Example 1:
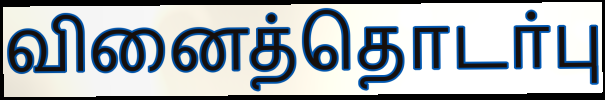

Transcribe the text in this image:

வினைத்தொடர்பு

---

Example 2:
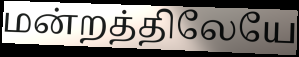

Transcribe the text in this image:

மன்றத்திலேயே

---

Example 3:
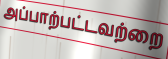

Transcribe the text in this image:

அப்பாற்பட்டவற்றை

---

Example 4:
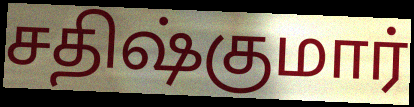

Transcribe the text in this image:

சதிஷ்குமார்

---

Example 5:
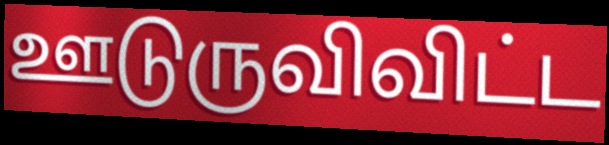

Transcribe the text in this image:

ஊடுருவிவிட்ட